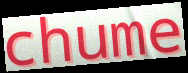
chume